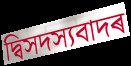
দ্বিসদস্যবাদৰ